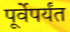
पूर्वेपर्यंत